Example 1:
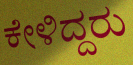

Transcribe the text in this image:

ಕೇಳಿದ್ದರು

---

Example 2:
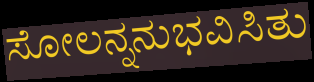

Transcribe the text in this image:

ಸೋಲನ್ನನುಭವಿಸಿತು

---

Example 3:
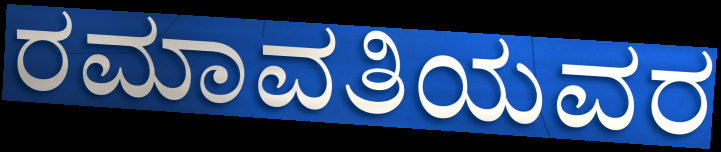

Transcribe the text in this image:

ರಮಾವತಿಯವರ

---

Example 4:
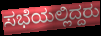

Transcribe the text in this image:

ಸಭೆಯಲ್ಲಿದ್ದರು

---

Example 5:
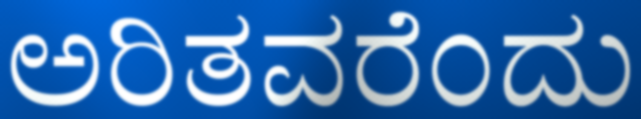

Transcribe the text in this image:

ಅರಿತವರೆಂದು